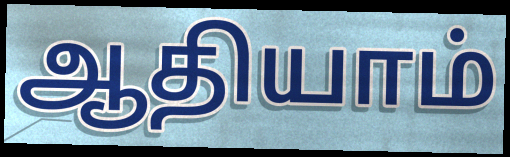
ஆதியாம்